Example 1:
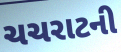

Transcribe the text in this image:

ચચરાટની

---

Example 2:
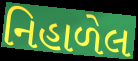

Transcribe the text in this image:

નિહાળેલ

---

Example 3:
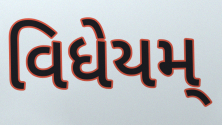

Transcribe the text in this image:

વિધેયમ્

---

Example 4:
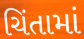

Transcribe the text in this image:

ચિંતામાં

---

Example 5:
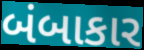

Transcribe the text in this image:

બંબાકાર